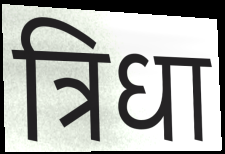
त्रिधा